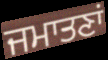
ਜਮਾਤਣਾਂ